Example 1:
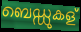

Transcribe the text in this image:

ബെഡ്ഡുകള്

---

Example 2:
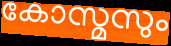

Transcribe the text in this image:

കോസ്മസും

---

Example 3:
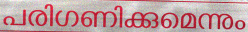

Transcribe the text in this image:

പരിഗണിക്കുമെന്നും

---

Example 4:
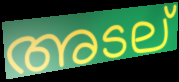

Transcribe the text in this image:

അടല്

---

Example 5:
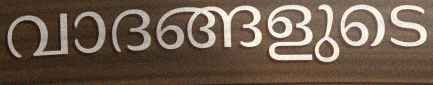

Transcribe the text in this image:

വാദങ്ങളുടെ